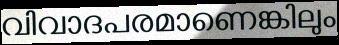
വിവാദപരമാണെങ്കിലും